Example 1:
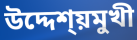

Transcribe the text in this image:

উদ্দেশ্য়মুখী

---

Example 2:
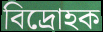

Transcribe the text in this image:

বিদ্ৰোহক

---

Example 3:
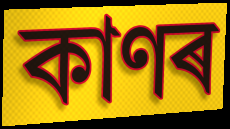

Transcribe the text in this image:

কাণৰ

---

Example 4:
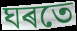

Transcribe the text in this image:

ঘৰতে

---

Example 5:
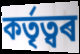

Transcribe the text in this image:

কৰ্তৃত্বৰ